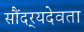
सौंदर्यदेवता